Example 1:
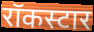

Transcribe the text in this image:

रॉकस्टार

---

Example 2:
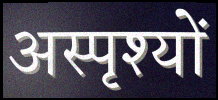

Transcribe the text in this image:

अस्पृश्यों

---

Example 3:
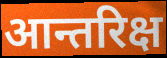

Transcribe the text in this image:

आन्तरिक्ष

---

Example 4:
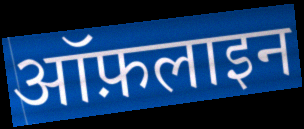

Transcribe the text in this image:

ऑफ़लाइन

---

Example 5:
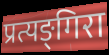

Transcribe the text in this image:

प्रत्यङ्गिरा